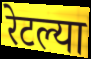
रेटल्या